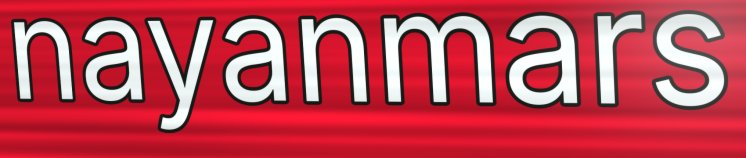
nayanmars